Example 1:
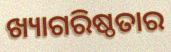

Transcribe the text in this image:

ଖ୍ୟାଗରିଷ୍ଠତାର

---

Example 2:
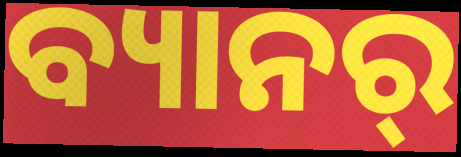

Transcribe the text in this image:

ବ୍ୟାନର୍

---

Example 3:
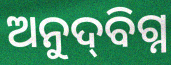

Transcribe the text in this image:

ଅନୁଦ୍‌ବିଗ୍ନ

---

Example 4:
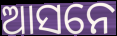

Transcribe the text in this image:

ଆସନେ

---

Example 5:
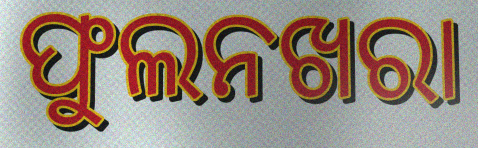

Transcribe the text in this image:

ଫୁଲନଖରା